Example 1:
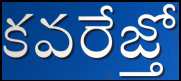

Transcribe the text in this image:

కవరేజ్తో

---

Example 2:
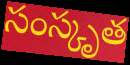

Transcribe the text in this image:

సంస్కృత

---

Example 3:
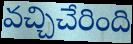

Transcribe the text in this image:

వచ్చిచేరింది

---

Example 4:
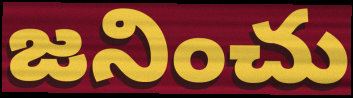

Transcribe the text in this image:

జనించు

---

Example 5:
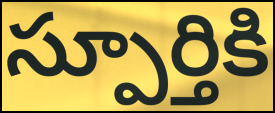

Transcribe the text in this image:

స్పూర్తికి